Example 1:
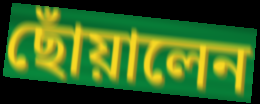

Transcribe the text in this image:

ছোঁয়ালেন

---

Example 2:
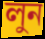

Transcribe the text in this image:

লুন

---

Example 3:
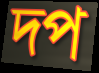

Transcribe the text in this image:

দপ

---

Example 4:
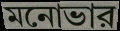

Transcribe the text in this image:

মনোভার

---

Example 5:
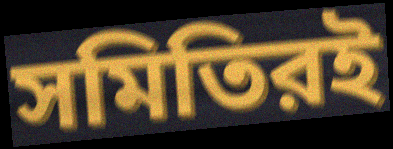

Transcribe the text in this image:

সমিতিরই